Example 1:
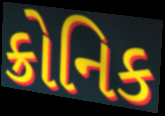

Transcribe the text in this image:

ક્રોનિક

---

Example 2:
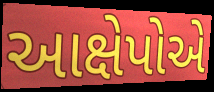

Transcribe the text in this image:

આક્ષેપોએ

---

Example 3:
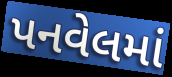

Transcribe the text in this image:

પનવેલમાં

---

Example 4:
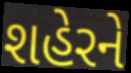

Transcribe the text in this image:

શહેરને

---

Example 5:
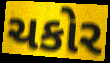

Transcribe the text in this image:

ચકોર